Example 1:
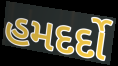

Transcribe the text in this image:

હમદર્દો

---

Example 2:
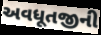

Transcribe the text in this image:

અવધૂતજીની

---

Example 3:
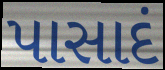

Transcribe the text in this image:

પાસાદં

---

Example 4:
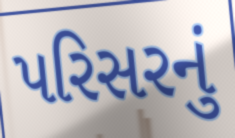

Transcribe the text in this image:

પરિસરનું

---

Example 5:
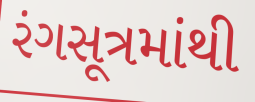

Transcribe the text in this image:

રંગસૂત્રમાંથી